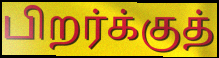
பிறர்க்குத்